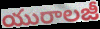
యురాలజీ